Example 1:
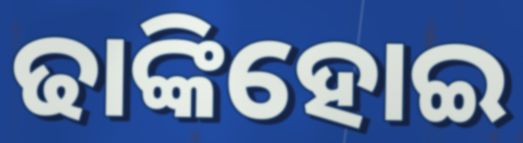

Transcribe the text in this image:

ଢାଙ୍କିହୋଇ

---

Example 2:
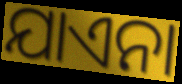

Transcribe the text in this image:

ଯାଏନା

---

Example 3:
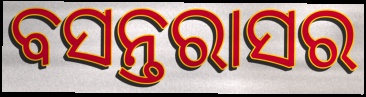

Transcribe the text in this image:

ବସନ୍ତରାସର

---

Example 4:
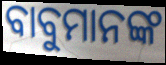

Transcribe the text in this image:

ବାବୁମାନଙ୍କ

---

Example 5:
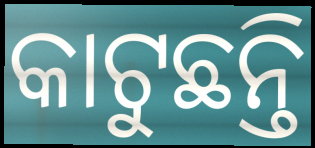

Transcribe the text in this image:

କାଟୁଛନ୍ତି